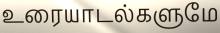
உரையாடல்களுமே